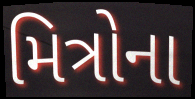
મિત્રોના